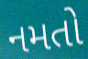
નમતો